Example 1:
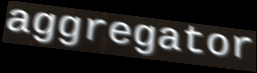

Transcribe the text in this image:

aggregator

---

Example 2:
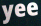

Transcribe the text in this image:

yee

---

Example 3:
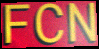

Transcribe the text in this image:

FCN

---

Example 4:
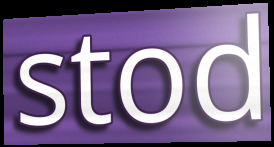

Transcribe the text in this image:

stod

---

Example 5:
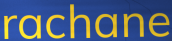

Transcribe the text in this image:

rachane